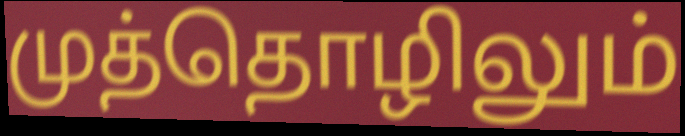
முத்தொழிலும்